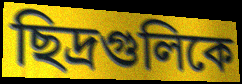
ছিদ্রগুলিকে